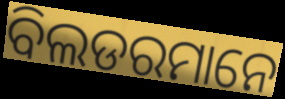
ବିଲଡରମାନେ